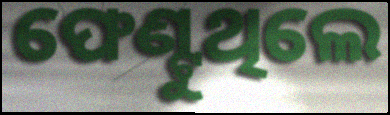
ଫେଣ୍ଟୁଥିଲେ